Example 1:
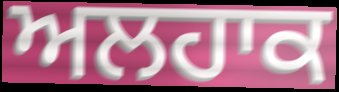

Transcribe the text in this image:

ਅਲਹਾਕ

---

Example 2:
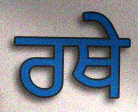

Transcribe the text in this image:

ਰਥੇ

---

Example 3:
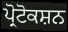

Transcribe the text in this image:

ਪ੍ਰੋਟੋਕਸ਼ਨ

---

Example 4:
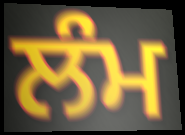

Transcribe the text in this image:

ਲੰਮ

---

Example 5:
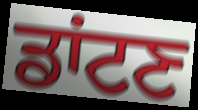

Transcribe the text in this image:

ਡਾਂਟਣ